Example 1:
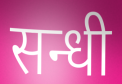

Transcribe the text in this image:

सन्धी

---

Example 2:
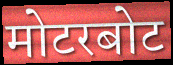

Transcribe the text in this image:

मोटरबोट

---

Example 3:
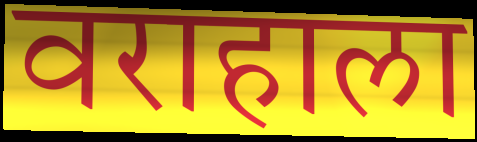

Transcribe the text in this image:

वराहाला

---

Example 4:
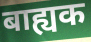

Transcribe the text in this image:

बाह्यक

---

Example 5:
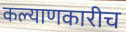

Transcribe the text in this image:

कल्याणकारीच